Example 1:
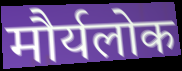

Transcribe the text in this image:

मौर्यलोक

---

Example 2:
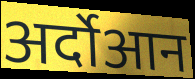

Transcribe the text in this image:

अर्दोआन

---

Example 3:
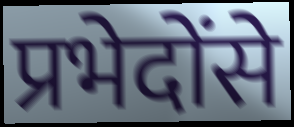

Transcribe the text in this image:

प्रभेदोंसे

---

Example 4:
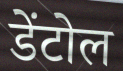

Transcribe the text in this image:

डेंटोल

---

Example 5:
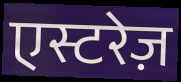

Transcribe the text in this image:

एस्टरेज़